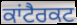
ਕਾਂਟੈਰਕਟ